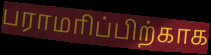
பராமரிப்பிற்காக